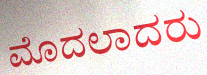
ಮೊದಲಾದರು